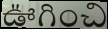
ఊగించి